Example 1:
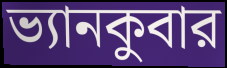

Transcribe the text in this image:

ভ্যানকুবার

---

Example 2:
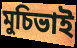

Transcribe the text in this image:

মুচিভাই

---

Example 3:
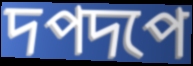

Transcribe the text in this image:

দপদপে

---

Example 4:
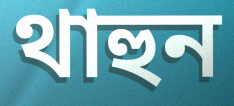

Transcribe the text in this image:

থাহুন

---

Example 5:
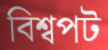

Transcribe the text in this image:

বিশ্বপট